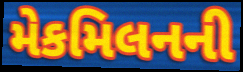
મેકમિલનની